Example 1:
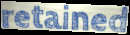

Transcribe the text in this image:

retained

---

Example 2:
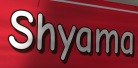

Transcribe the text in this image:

Shyama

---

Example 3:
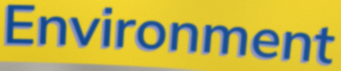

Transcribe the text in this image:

Environment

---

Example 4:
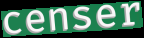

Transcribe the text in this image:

censer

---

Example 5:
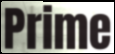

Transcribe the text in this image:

Prime